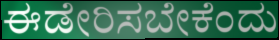
ಈಡೇರಿಸಬೇಕೆಂದು